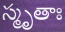
స్మృతాః